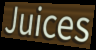
Juices